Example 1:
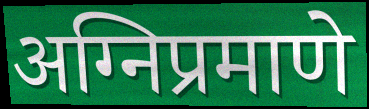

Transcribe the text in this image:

अग्निप्रमाणे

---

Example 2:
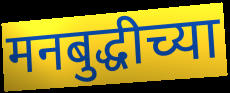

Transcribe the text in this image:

मनबुद्धीच्या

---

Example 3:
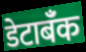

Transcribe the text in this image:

डेटाबँक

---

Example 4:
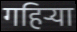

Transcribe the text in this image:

गहिऱ्या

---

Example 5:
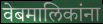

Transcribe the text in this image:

वेबमालिकांना